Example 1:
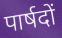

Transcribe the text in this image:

पार्षदों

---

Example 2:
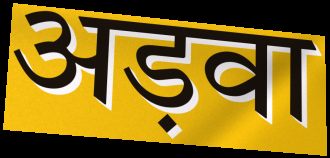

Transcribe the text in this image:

अड़वा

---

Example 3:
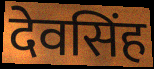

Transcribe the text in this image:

देवसिंह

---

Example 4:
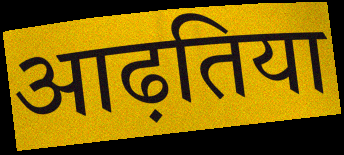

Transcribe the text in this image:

आढ़तिया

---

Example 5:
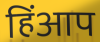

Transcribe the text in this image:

हिंआप